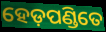
ହେଡ଼ପଣ୍ଡିତେ